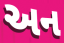
અન